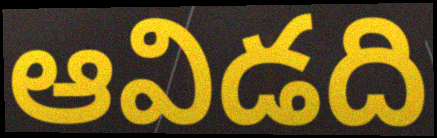
ఆవిడది